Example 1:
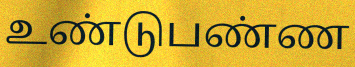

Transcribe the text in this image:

உண்டுபண்ண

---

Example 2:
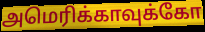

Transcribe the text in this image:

அமெரிக்காவுக்கோ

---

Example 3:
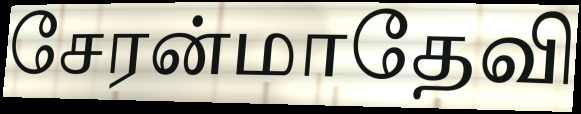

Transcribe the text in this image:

சேரன்மாதேவி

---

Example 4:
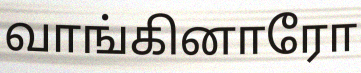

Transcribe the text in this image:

வாங்கினாரோ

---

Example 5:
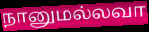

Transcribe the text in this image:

நானுமல்லவா